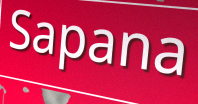
Sapana